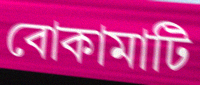
বোকামাটি